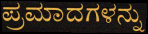
ಪ್ರಮಾದಗಳನ್ನು